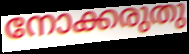
നോക്കരുതു